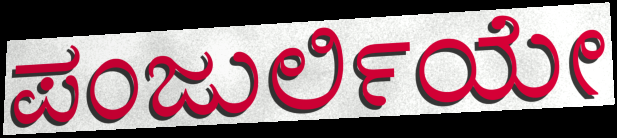
ಪಂಜುರ್ಲಿಯೇ